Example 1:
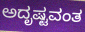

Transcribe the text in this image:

ಅದೃಷ್ಟವಂತ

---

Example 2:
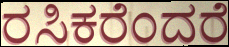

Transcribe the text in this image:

ರಸಿಕರೆಂದರೆ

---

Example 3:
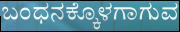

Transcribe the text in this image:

ಬಂಧನಕ್ಕೊಳಗಾಗುವ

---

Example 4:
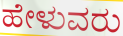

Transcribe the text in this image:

ಹೇಳುವರು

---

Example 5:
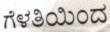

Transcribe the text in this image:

ಗೆಳತಿಯಿಂದ